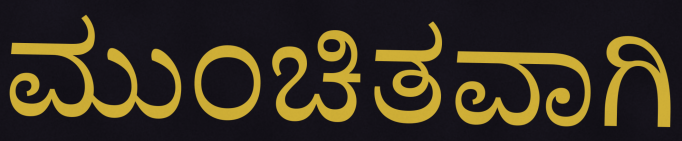
ಮುಂಚಿತವಾಗಿ